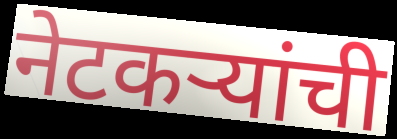
नेटकऱ्यांची